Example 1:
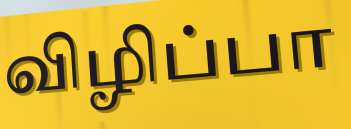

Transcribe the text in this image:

விழிப்பா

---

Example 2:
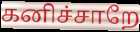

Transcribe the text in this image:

கனிச்சாறே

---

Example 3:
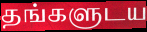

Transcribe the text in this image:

தங்களுடய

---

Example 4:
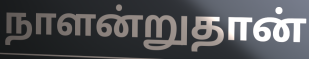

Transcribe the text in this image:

நாளன்றுதான்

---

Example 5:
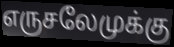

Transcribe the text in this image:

எருசலேமுக்கு